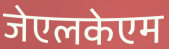
जेएलकेएम